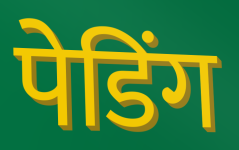
पेडिंग